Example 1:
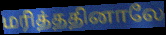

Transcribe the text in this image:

மரித்ததினாலே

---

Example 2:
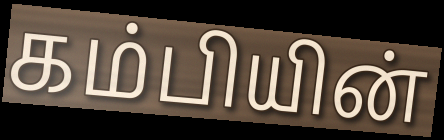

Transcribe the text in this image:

கம்பியின்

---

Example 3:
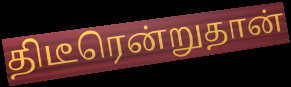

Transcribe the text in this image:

திடீரென்றுதான்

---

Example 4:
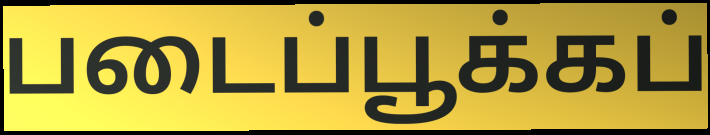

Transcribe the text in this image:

படைப்பூக்கப்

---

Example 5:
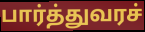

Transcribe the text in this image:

பார்த்துவரச்